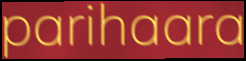
parihaara